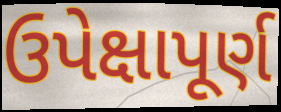
ઉપેક્ષાપૂર્ણ